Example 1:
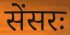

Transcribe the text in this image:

सेंसरः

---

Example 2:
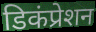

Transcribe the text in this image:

डिकंप्रेशन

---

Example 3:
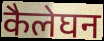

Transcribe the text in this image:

कैलेघन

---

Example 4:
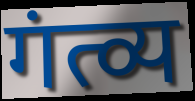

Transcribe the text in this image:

गंत्व्य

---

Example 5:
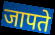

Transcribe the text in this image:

जापते